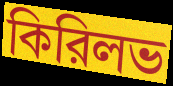
কিরিলভ